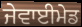
ਜੇਵਾਈਮੇਡ